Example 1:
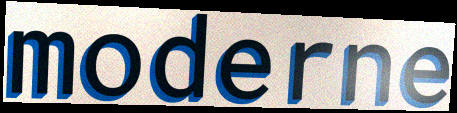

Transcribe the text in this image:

moderne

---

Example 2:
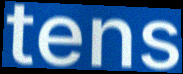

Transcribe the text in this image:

tens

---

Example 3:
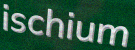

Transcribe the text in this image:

ischium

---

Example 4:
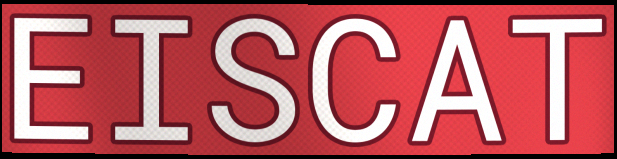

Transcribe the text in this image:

EISCAT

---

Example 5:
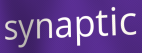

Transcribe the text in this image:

synaptic